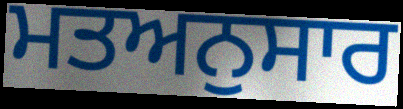
ਮਤਅਨੁਸਾਰ